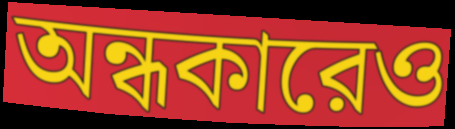
অন্ধকারেও